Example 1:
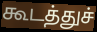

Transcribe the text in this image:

கூடத்துச்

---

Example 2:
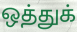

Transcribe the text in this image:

ஒத்துக்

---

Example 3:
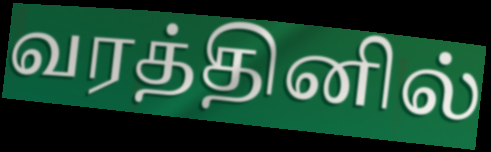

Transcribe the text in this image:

வரத்தினில்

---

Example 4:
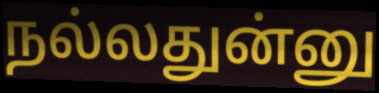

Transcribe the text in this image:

நல்லதுன்னு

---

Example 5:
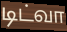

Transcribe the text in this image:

டிட்வா